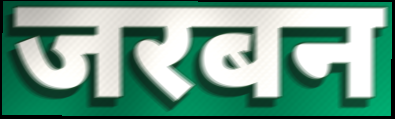
जरबन